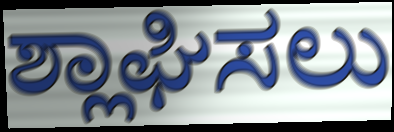
ಶ್ಲಾಘಿಸಲು